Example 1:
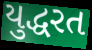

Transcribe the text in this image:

યુદ્ધરત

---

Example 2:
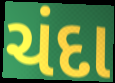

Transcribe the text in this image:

ચંદા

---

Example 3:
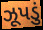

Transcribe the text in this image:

ઝૂપડું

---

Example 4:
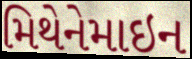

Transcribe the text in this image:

મિથેનેમાઇન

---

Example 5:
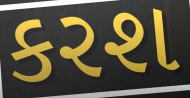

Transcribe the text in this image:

કરશ